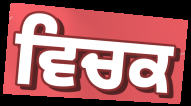
ਵਿਚਕ